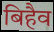
बिहैव